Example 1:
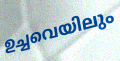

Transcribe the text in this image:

ഉച്ചവെയിലും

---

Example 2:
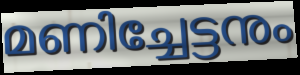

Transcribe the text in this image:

മണിച്ചേട്ടനും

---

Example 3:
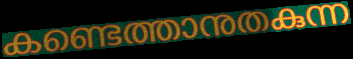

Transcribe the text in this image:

കണ്ടെത്താനുതകുന്ന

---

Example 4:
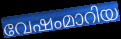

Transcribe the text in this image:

വേഷംമാറിയ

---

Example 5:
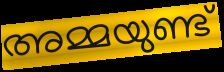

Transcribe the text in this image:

അമ്മയുണ്ട്